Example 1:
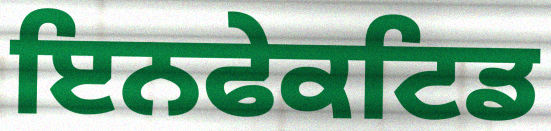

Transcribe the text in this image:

ਇਨਫੇਕਟਿਡ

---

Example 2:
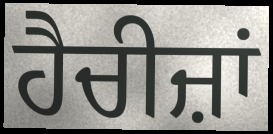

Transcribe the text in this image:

ਹੈਚੀਜ਼ਾਂ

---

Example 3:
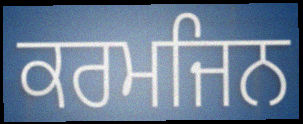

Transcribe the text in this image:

ਕਰਮਜਿਨ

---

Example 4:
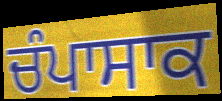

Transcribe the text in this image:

ਚੰਪਾਸਾਕ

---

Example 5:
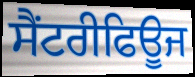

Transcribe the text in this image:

ਸੈਂਟਰੀਫਿਊਜ